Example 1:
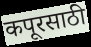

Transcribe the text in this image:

कपूरसाठी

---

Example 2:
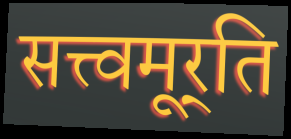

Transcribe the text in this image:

सत्त्वमूर्ति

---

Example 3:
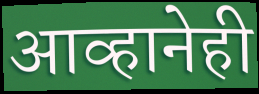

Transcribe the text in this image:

आव्हानेही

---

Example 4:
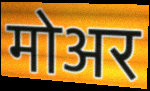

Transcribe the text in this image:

मोअर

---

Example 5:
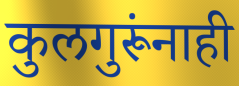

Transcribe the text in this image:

कुलगुरूंनाही